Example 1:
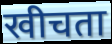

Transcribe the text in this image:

खीचता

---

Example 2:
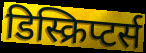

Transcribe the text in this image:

डिस्क्रिप्टर्स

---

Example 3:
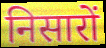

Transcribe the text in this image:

निसारों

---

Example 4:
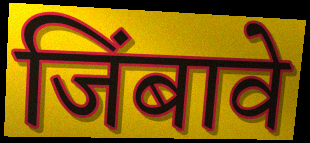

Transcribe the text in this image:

जिंबावे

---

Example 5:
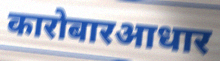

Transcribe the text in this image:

कारोबारआधार